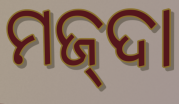
ମଜ୍‌ଦା